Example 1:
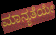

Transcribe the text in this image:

ಮಾನ್ಯತೆಯೇ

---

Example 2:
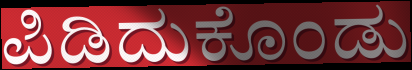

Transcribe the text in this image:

ಪಿಡಿದುಕೊಂಡು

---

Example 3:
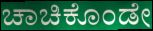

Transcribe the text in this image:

ಚಾಚಿಕೊಂಡೇ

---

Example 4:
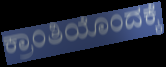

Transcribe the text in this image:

ಕ್ರಾಂತಿಯೊಂದಕ್ಕೆ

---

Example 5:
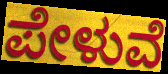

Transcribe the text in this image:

ಪೇಳುವೆ